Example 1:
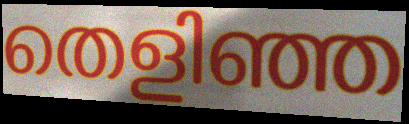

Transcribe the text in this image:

തെളിഞ്ഞ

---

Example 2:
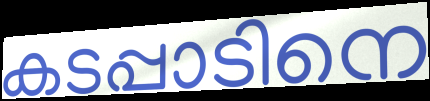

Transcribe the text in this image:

കടപ്പാടിനെ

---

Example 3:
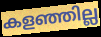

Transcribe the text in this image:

കളഞ്ഞില്ല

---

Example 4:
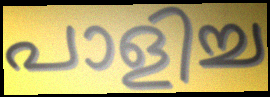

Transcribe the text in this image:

പാളിച്ച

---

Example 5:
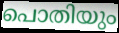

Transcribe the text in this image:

പൊതിയും